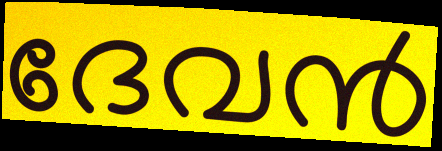
ദേവൻ